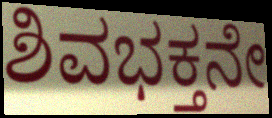
ಶಿವಭಕ್ತನೇ